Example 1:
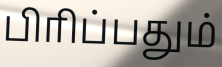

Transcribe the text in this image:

பிரிப்பதும்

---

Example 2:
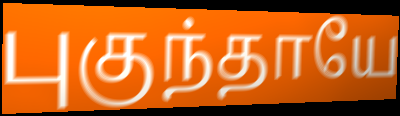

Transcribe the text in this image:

புகுந்தாயே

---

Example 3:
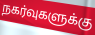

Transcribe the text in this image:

நகர்வுகளுக்கு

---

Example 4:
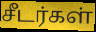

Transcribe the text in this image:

சீடர்கள்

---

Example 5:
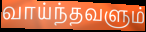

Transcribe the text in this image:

வாய்ந்தவளும்